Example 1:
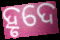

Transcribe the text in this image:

ହୃଦେ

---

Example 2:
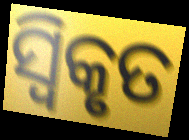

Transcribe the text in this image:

ସ୍ୱିକୃତ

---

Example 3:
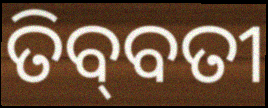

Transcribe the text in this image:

ତିବ୍‌ବତୀ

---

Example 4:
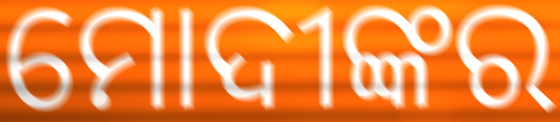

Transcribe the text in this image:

ମୋଦୀଙ୍କର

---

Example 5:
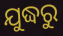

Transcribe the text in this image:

ଯୁଦ୍ଧରୁ